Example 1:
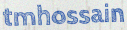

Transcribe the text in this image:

tmhossain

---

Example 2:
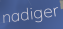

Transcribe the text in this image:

nadiger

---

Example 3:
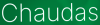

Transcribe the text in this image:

Chaudas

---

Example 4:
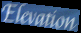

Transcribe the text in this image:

Elevation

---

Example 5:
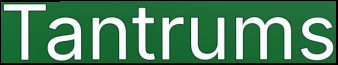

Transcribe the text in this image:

Tantrums